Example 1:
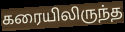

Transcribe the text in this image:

கரையிலிருந்த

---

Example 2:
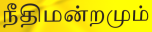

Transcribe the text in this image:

நீதிமன்றமும்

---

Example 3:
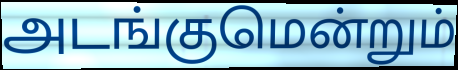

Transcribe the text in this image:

அடங்குமென்றும்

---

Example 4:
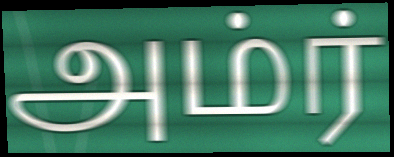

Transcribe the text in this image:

அம்ர்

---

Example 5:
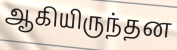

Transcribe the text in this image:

ஆகியிருந்தன